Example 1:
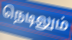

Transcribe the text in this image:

நெடிலும்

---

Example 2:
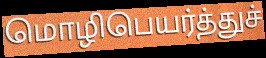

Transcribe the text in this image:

மொழிபெயர்த்துச்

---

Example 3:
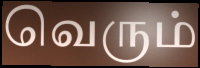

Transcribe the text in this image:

வெரும்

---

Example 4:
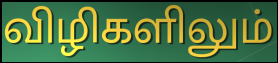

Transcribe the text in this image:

விழிகளிலும்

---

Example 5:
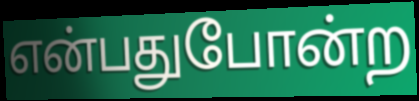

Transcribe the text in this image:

என்பதுபோன்ற